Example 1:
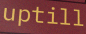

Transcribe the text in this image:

uptill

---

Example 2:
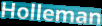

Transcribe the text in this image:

Holleman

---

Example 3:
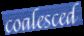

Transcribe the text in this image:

coalesced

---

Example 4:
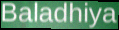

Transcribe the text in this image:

Baladhiya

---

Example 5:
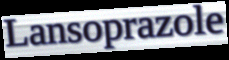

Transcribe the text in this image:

Lansoprazole